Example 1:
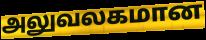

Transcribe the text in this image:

அலுவலகமான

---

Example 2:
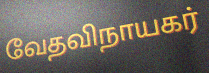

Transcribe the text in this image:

வேதவிநாயகர்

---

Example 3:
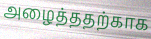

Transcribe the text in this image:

அழைத்ததற்காக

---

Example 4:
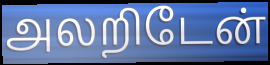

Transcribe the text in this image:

அலறிடேன்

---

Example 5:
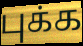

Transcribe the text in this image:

புக்க